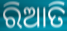
ରିଆତି